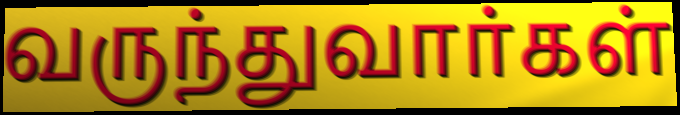
வருந்துவார்கள்